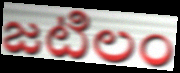
జటిలం